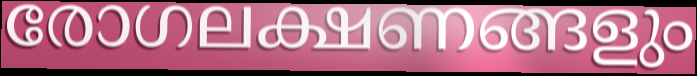
രോഗലക്ഷണങ്ങളും